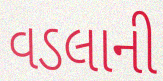
વડલાની